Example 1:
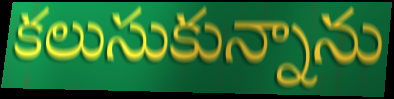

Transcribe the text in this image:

కలుసుకున్నాను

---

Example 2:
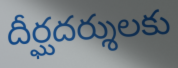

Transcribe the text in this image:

దీర్ఘదర్శులకు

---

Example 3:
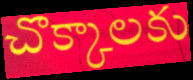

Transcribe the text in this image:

చొక్కాలకు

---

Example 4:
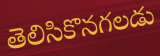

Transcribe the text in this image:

తెలిసికొనగలడు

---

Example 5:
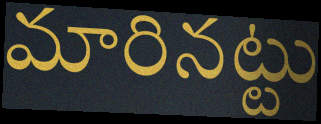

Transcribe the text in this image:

మారినట్టు